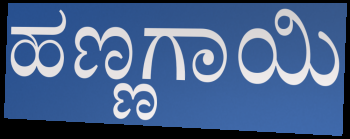
ಹಣ್ಣಗಾಯಿ